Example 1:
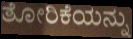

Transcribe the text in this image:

ತೋರಿಕೆಯನ್ನು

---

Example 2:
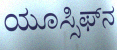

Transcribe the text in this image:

ಯೂಸ್ಸಿಫ್‌ನ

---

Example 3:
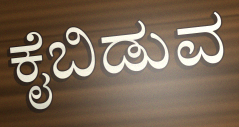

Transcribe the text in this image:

ಕೈಬಿಡುವ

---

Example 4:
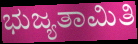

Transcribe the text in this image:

ಭುಜ್ಯತಾಮಿತಿ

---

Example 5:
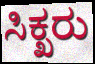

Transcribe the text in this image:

ಸಿಕ್ಖರು